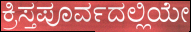
ಕ್ರಿಸ್ತಪೂರ್ವದಲ್ಲಿಯೇ